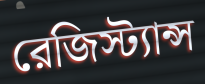
রেজিস্ট্যান্স